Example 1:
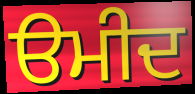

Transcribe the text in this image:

ੳਮੀਦ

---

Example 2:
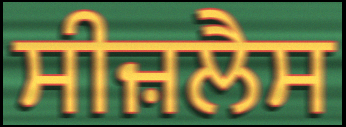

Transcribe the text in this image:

ਸੀਜ਼ਲੈਸ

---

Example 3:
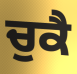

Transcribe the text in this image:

ਚੁਕੈ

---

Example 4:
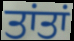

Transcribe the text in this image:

ਤਾਂਤਾਂ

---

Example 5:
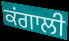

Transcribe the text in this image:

ਕਂਗਾਲੀ